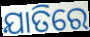
ଯାତିରେ